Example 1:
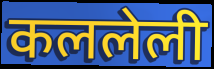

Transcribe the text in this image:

कललेली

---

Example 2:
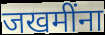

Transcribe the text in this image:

जखमींना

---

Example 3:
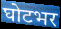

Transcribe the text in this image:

घोटभर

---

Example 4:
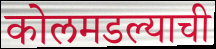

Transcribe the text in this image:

कोलमडल्याची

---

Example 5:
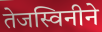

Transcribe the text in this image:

तेजस्विनीने